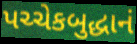
પચ્ચેકબુદ્ધાનં